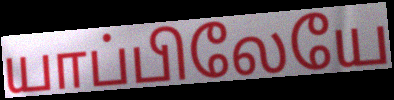
யாப்பிலேயே